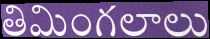
తిమింగలాలు